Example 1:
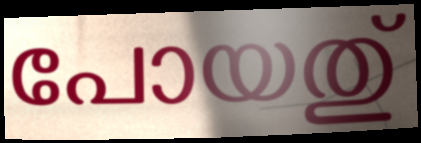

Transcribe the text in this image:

പോയതു്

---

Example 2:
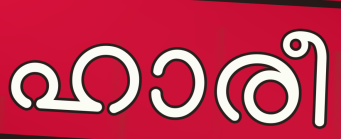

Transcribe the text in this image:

ഹാരീ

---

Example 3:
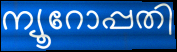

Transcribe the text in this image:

ന്യൂറോപ്പതി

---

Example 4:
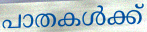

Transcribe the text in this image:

പാതകൾക്ക്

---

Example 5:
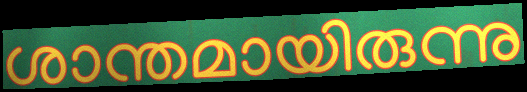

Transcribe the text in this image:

ശാന്തമായിരുന്നു